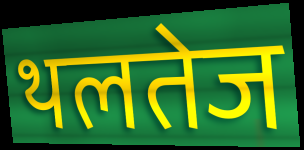
थलतेज